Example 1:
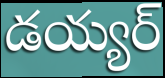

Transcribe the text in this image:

డయ్యర్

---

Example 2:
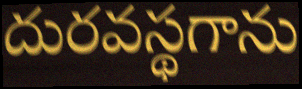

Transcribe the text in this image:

దురవస్థగాను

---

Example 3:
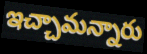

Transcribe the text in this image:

ఇచ్చామన్నారు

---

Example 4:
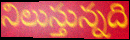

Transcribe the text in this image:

నిలుస్తున్నది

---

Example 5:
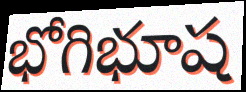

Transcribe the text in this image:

భోగిభూష